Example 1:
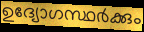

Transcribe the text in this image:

ഉദ്യോഗസ്ഥർക്കും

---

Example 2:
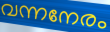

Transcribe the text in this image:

വന്നനേരം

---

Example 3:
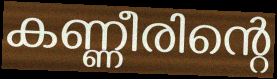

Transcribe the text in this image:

കണ്ണീരിന്റെ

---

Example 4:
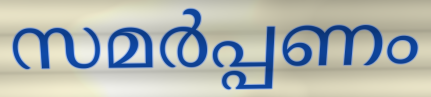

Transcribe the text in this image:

സമർപ്പണം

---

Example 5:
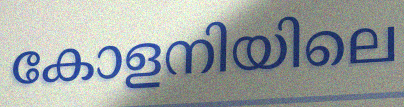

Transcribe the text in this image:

കോളനിയിലെ